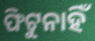
ଫିଟୁନାହିଁ